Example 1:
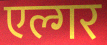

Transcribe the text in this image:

एल्गर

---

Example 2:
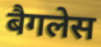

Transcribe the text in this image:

बैगलेस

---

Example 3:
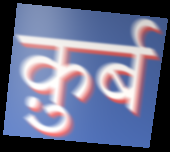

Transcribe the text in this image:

क़ुर्ब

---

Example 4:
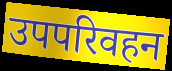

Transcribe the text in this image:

उपपरिवहन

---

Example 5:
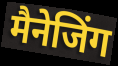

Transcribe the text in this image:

मैनेजिंग